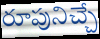
రూపునిచ్చే